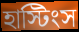
হাস্টিংস